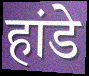
हांडे